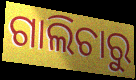
ଗାଲିଚାରୁ